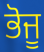
ਭੋਜੂ